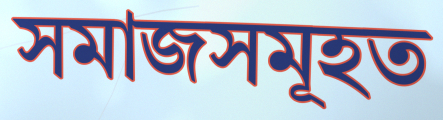
সমাজসমূহত